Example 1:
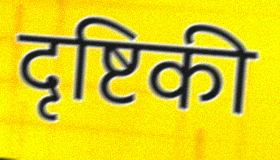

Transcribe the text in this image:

दृष्टिकी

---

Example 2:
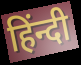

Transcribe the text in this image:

हिंन्दी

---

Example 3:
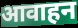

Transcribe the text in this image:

आवाहन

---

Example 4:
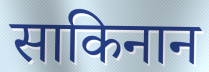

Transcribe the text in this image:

साकिनान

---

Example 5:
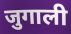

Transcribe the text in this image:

जुगाली